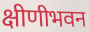
क्षीणीभवन